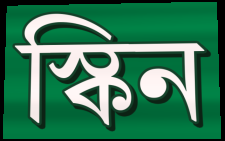
স্কিন